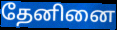
தேனினை